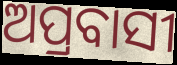
ଅପ୍ରବାସୀ